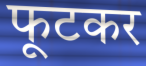
फूटकर